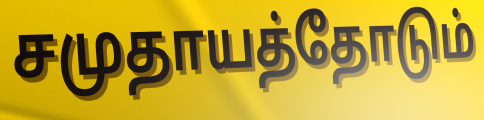
சமுதாயத்தோடும்